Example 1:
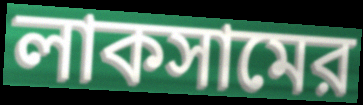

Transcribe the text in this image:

লাকসামের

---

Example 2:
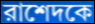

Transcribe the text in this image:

রাশেদকে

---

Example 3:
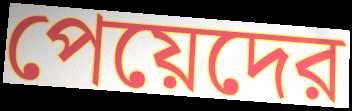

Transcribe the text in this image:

পেয়েদের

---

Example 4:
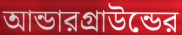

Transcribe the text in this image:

আন্ডারগ্রাউন্ডের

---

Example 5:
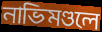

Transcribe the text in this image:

নাভিমণ্ডলে